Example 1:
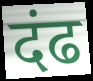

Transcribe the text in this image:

दंढ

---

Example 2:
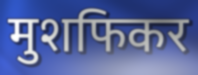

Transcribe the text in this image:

मुशफिकर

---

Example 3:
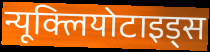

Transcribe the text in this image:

न्यूक्लियोटाइड्स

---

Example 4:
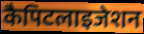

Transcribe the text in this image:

कैपिटलाइजेशन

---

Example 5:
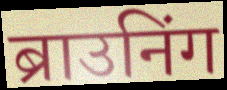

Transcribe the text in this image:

ब्राउनिंग